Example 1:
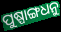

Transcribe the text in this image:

ପୁଷ୍ପାଙ୍ଗଧନୁ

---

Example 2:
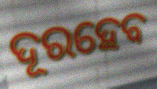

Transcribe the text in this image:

ଦୂରହେବ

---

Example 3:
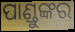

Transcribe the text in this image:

ପାଣ୍ଡୁଙ୍କର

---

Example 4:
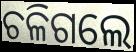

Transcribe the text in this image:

ଚଳିଗଲେ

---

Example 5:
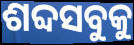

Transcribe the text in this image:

ଶବ୍ଦସବୁକୁ